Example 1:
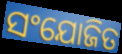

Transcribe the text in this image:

ସଂଯୋଜିତ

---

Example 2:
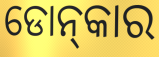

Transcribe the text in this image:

ଡୋନ୍‍କାର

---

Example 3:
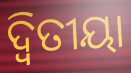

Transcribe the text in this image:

ଦ୍ବିତୀୟା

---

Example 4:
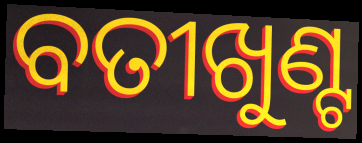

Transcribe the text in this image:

ବତୀଖୁଣ୍ଟ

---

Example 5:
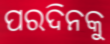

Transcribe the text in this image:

ପରଦିନକୁ